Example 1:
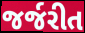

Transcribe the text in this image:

જર્જરીત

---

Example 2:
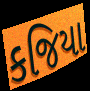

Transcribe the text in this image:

કજિયા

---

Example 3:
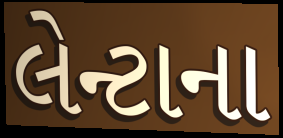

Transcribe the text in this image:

લેન્ટાના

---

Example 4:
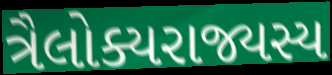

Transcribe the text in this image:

ત્રૈલોક્યરાજ્યસ્ય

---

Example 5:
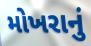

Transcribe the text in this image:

મોખરાનું